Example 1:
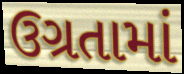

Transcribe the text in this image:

ઉગ્રતામાં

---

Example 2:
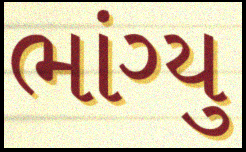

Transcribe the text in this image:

ભાંગ્યુ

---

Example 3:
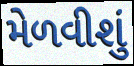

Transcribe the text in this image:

મેળવીશું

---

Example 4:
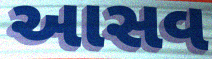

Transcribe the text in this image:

આસવ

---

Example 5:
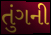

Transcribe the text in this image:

તુંગની